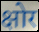
क्षोर